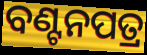
ବଣ୍ଟନପତ୍ର